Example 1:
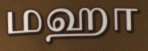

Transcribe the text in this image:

மஹா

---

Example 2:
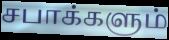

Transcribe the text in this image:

சபாக்களும்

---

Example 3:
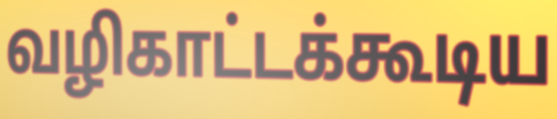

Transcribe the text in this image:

வழிகாட்டக்கூடிய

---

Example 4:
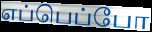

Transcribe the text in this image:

எப்பெப்போ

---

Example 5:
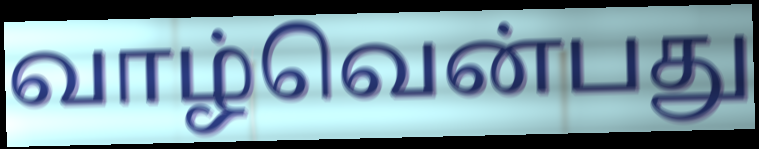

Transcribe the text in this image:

வாழ்வென்பது